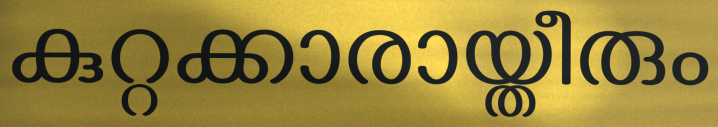
കുറ്റക്കാരായ്തീരും